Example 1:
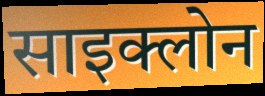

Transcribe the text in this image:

साइक्लोन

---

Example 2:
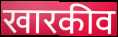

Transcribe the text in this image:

खारकीव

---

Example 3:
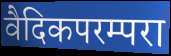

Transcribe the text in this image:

वैदिकपरम्परा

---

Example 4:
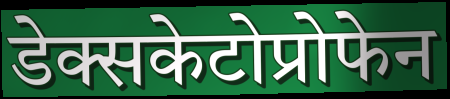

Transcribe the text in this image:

डेक्सकेटोप्रोफेन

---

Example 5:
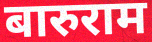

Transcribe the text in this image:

बारुराम